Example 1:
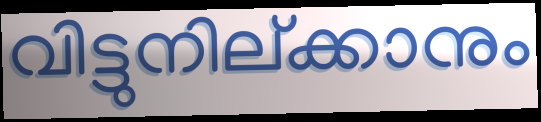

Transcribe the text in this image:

വിട്ടുനില്ക്കാനും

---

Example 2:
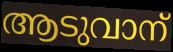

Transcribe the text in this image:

ആടുവാന്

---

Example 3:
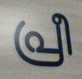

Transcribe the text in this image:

പ്രീ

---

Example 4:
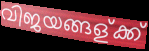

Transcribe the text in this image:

വിജയങ്ങള്ക്ക്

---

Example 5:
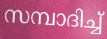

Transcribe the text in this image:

സമ്പാദിച്ച്